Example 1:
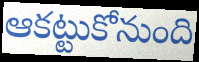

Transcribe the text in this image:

ఆకట్టుకోనుంది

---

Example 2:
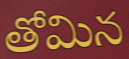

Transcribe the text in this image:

తోమిన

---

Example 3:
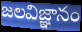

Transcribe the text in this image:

జలవిజ్ఞానం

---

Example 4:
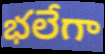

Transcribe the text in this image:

భలేగా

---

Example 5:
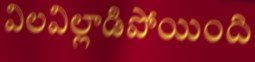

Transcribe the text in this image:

విలవిల్లాడిపోయింది